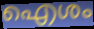
ഐശം